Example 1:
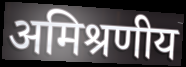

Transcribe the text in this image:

अमिश्रणीय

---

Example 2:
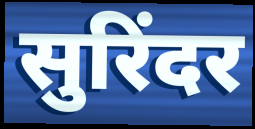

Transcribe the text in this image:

सुरिंदर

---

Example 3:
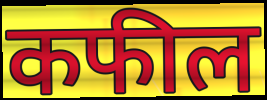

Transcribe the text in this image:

कफील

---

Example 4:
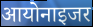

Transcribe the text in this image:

आयोनाइजर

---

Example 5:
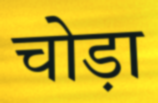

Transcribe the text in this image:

चोड़ा